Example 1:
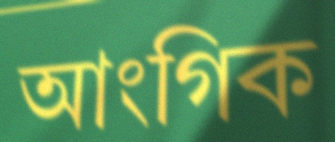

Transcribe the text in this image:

আংগিক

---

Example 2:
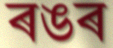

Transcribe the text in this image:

ৰঙৰ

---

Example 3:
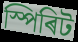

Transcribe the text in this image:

স্পিৰিট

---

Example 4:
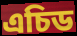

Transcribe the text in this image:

এচিড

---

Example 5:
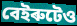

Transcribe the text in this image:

বেইৰুটেও